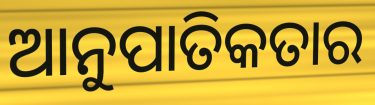
ଆନୁପାତିକତାର